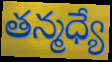
తన్మధ్యే